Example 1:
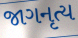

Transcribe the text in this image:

જાગનૃત્ય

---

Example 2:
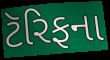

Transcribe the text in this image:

ટૅરિફના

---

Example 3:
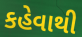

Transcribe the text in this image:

કહેવાથી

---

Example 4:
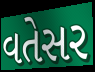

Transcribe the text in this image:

વતેસર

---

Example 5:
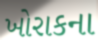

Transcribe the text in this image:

ખોરાકના